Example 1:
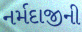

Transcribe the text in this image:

નર્મદાજીની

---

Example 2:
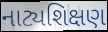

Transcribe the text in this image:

નાટ્યશિક્ષણ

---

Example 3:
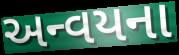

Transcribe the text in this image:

અન્વયના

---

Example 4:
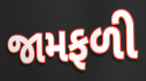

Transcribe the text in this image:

જામફળી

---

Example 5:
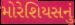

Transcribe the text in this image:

મોરેશિયસનું